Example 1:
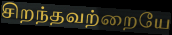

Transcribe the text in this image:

சிறந்தவற்றையே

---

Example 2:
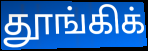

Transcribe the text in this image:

தூங்கிக்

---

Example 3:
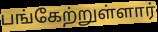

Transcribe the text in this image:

பங்கேற்றுள்ளார்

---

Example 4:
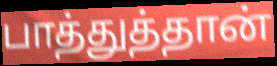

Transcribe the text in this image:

பாத்துத்தான்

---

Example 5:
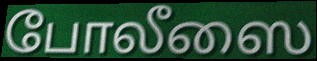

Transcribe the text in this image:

போலீஸை